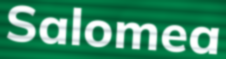
Salomea